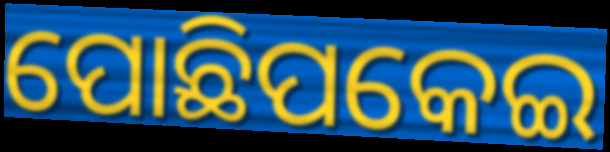
ପୋଛିପକେଇ